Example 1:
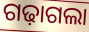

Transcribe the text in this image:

ଗଢ଼ାଗଲା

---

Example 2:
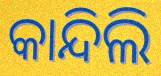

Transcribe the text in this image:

କାନ୍ଦିଲି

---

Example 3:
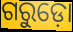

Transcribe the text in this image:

ଗରୁଡ଼ୋ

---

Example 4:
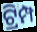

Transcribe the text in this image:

ଟ୍ରିମ୍ପ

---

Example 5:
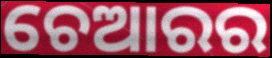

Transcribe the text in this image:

ଚେଆରର